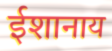
ईशानाय